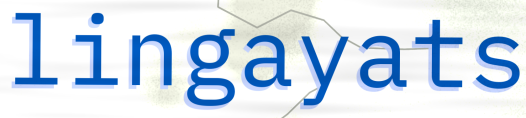
lingayats